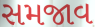
સમજાવ